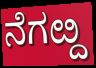
ನೆಗೞ್ದ